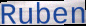
Ruben